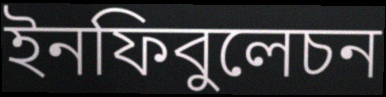
ইনফিবুলেচন